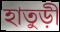
হাতুড়ী